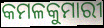
କମଳକୁମାରୀ